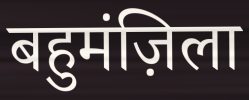
बहुमंज़िला